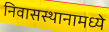
निवासस्थानामध्ये